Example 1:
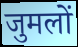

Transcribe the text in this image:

जुमलों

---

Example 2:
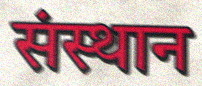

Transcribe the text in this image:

संस्‍थान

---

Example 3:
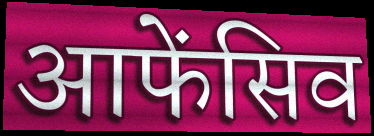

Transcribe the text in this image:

आफेंसिव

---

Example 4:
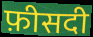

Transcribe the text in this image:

फ़ीसदी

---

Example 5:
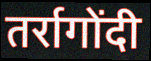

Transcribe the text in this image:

तर्रागोंदी